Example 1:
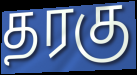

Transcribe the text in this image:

தரகு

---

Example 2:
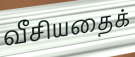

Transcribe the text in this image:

வீசியதைக்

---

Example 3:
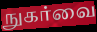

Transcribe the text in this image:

நுகர்வை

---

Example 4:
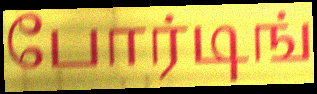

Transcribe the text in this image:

போர்டிங்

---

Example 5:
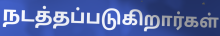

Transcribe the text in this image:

நடத்தப்படுகிறார்கள்